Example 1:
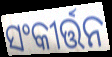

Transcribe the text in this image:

ସଂକୀର୍ତ୍ତନ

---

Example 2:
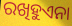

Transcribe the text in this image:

ରଖିହୁଏନା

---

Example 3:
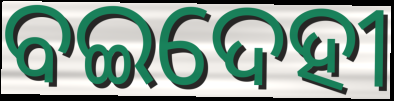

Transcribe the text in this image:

ବଇଦେହୀ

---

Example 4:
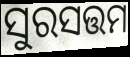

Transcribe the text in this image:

ସୁରସତ୍ତମ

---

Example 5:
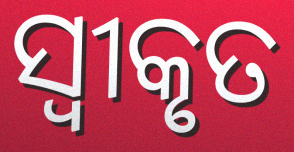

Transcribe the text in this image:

ସ୍ଵୀକୃତ